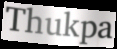
Thukpa